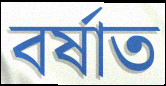
বৰ্ষাত